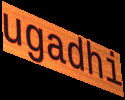
ugadhi